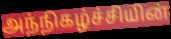
அந்நிகழ்ச்சியின்